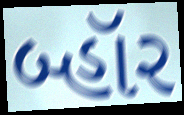
બ્હૉર